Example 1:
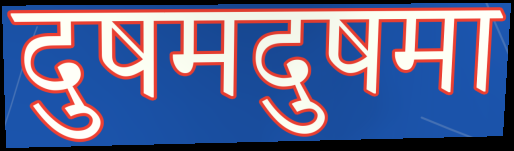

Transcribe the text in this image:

दुषमदुषमा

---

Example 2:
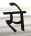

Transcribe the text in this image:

से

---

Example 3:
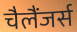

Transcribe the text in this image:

चैलैंजर्स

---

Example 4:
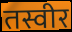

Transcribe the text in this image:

तस्वीर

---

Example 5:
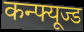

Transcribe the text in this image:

कन्फ्यूज्ड